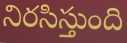
నిరసిస్తుంది